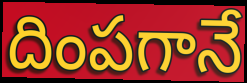
దింపగానే